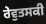
ਰੇਵੁਤਸਕੀ